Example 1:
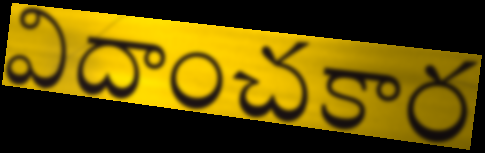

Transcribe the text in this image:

విదాంచకార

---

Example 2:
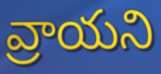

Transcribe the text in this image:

వ్రాయని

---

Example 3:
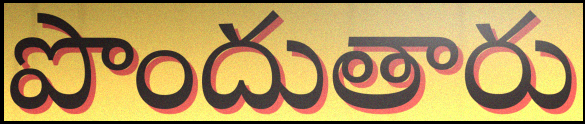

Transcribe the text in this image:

పొందుతారు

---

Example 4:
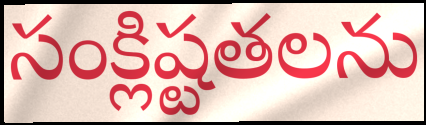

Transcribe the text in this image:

సంక్లిష్టతలను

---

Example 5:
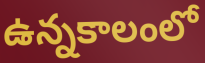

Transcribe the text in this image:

ఉన్నకాలంలో